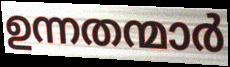
ഉന്നതന്മാർ